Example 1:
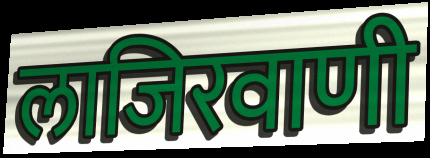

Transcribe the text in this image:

लाजिरवाणी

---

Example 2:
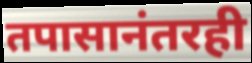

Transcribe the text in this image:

तपासानंतरही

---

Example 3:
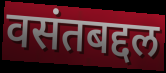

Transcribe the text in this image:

वसंतबद्दल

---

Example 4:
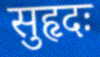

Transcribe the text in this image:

सुहृदः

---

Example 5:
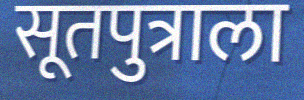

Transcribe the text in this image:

सूतपुत्राला